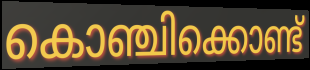
കൊഞ്ചിക്കൊണ്ട്